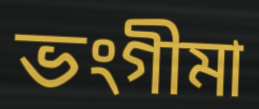
ভংগীমা